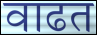
वाढत